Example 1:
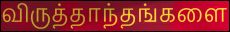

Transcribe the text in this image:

விருத்தாந்தங்களை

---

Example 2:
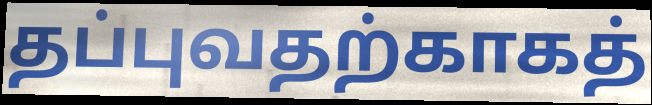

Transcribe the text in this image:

தப்புவதற்காகத்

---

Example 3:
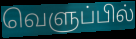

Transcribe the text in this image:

வெளுப்பில்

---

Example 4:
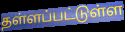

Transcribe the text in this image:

தள்ளப்பட்டுள்ள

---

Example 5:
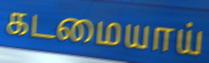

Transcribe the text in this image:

கடமையாய்